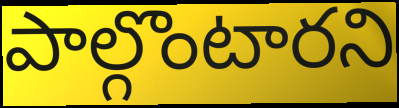
పాల్గొంటారని